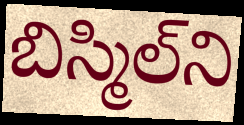
బిస్మిల్‌ని